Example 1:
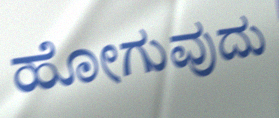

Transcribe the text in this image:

ಹೋಗುವುದು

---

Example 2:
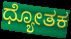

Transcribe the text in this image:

ಧ್ಯೋತಕ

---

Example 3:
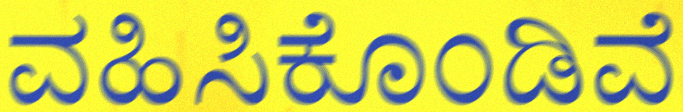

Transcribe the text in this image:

ವಹಿಸಿಕೊಂಡಿವೆ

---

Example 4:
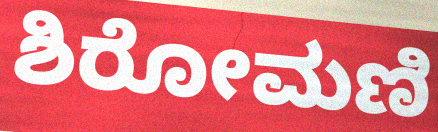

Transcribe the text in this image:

ಶಿರೋಮಣಿ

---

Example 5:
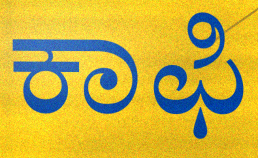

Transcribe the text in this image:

ಕಾಫಿ